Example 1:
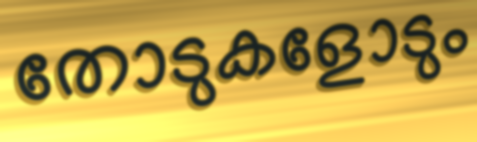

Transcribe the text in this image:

തോടുകളോടും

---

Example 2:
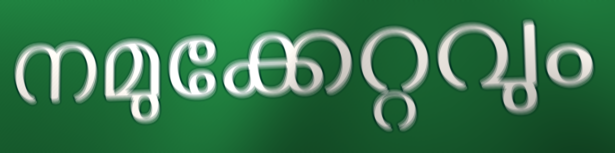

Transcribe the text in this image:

നമുക്കേറ്റവും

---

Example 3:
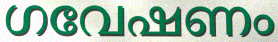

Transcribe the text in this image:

ഗവേഷണം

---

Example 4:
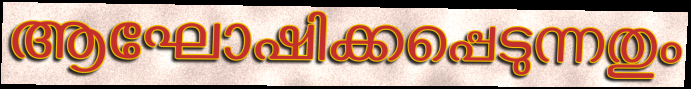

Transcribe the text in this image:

ആഘോഷിക്കപ്പെടുന്നതും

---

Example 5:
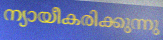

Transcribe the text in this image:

ന്യായീകരിക്കുന്നു